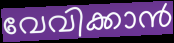
വേവിക്കാൻ